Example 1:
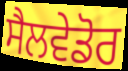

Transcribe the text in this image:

ਸੈਲਵੇਡੋਰ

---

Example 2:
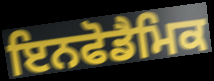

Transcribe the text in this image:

ਇਨਫੋਡੈਮਿਕ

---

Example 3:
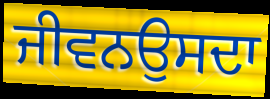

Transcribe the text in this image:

ਜੀਵਨਉਸਦਾ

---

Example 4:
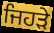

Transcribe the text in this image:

ਜਿਹਡ਼ੇ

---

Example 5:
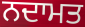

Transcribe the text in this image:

ਨਦਾਮਤ